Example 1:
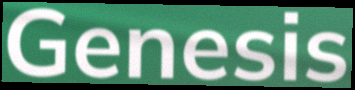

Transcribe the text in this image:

Genesis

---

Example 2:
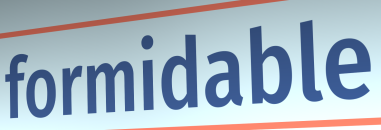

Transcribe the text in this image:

formidable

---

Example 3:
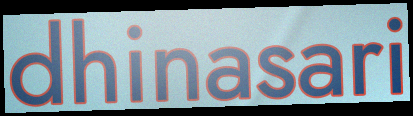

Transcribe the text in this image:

dhinasari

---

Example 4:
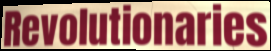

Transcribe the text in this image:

Revolutionaries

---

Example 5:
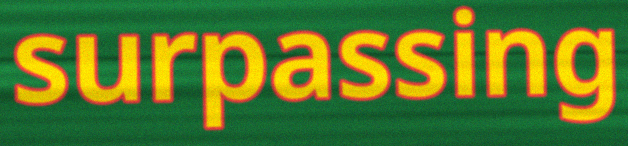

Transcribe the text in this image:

surpassing